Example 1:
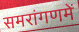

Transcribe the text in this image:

समरांगणमें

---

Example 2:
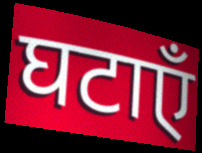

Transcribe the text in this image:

घटाएँ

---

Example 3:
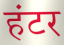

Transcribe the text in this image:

हंटर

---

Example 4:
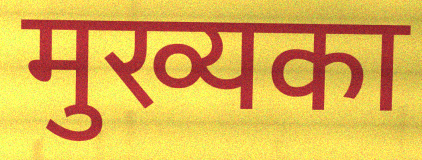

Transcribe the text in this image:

मुख्यका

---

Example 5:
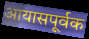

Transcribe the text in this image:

आयासपूर्वक